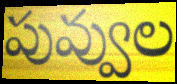
పువ్వుల